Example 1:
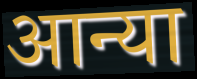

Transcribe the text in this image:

आन्या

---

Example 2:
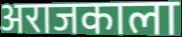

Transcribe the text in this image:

अराजकाला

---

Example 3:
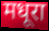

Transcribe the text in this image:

मधूरा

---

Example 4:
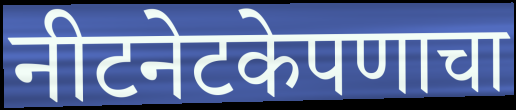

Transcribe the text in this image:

नीटनेटकेपणाचा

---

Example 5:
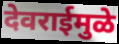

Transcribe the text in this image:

देवराईमुळे